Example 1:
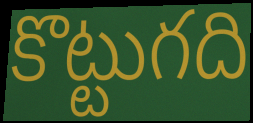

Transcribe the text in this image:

కొట్టుగది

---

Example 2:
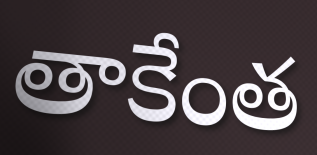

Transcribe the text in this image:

తాకేంత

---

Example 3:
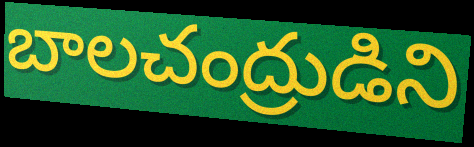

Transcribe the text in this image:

బాలచంద్రుడిని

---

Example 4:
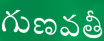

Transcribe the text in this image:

గుణవతీ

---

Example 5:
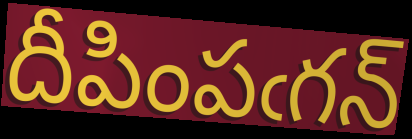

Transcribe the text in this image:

దీపింపఁగన్